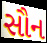
સૌન